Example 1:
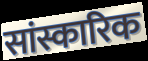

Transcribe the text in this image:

सांस्कारिक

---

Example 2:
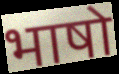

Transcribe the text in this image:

भाषो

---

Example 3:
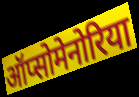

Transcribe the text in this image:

ऑप्सोमेनोरिया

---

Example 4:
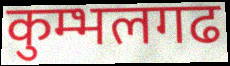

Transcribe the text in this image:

कुम्भलगढ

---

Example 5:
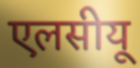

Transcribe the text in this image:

एलसीयू